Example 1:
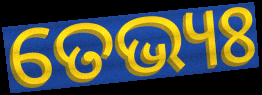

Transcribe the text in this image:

ତେଭ୍ୟଃ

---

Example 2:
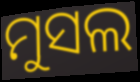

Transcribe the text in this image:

ମୁସଲ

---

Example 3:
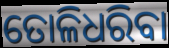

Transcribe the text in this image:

ତୋଳିଧରିବା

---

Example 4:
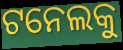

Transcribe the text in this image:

ଟନେଲକୁ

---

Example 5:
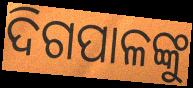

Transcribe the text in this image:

ଦିଗପାଳଙ୍କୁ